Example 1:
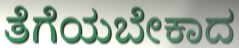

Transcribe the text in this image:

ತೆಗೆಯಬೇಕಾದ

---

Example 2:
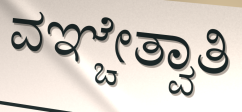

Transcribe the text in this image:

ವಞ್ಚೇತ್ವಾತಿ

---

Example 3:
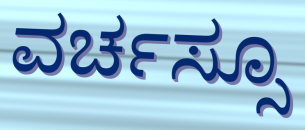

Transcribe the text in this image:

ವರ್ಚಸ್ಸೂ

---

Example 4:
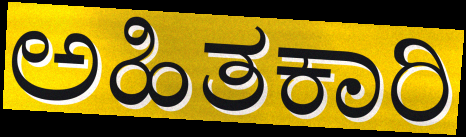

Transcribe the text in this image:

ಅಹಿತಕಾರಿ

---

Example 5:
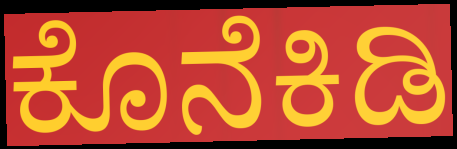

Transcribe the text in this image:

ಕೊನೆಕಿಡಿ